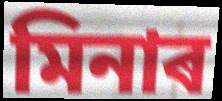
মিনাৰ